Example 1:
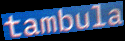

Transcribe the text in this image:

tambula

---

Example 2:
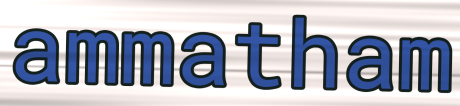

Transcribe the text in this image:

ammatham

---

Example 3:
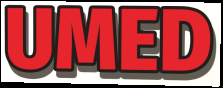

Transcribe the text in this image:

UMED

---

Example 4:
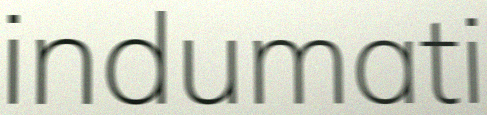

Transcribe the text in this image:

indumati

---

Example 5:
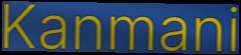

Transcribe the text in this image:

Kanmani